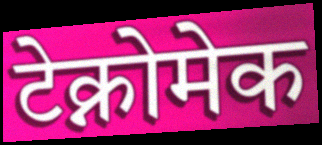
टेक्नोमेक